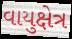
વાયુક્ષેત્ર